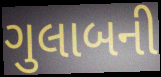
ગુલાબની